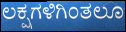
ಲಕ್ಷಗಳಿಗಿಂತಲೂ